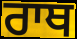
ਰਾਥ